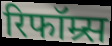
रिफॉम्र्स